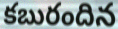
కబురందిన